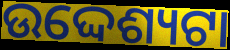
ଉଦ୍ଦେଶ୍ୟଟା